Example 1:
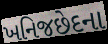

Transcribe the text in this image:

ખનિજછેદના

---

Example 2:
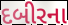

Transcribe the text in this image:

દબીરના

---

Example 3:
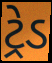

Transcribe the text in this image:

ટ્રેડ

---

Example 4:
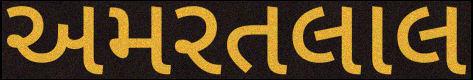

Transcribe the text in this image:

અમરતલાલ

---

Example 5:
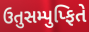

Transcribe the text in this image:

ઉતુસમ્પુપ્ફિતે